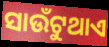
ସାଉଁଟୁଥାଏ